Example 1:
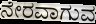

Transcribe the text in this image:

ನೇರವಾಗುವ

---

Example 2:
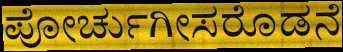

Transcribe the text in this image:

ಪೋರ್ಚುಗೀಸರೊಡನೆ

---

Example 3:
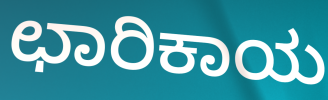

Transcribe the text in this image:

ಛಾರಿಕಾಯ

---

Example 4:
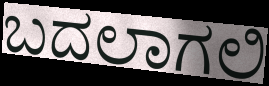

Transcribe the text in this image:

ಬದಲಾಗಲಿ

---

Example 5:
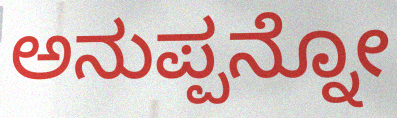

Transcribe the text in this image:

ಅನುಪ್ಪನ್ನೋ